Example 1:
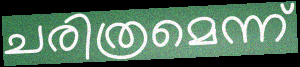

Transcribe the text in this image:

ചരിത്രമെന്ന്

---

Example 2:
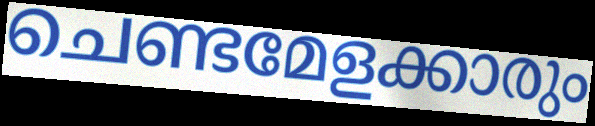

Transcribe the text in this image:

ചെണ്ടമേളക്കാരും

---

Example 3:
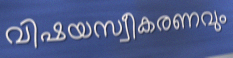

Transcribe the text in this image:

വിഷയസ്വീകരണവും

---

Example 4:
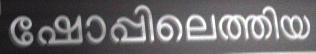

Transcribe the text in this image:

ഷോപ്പിലെത്തിയ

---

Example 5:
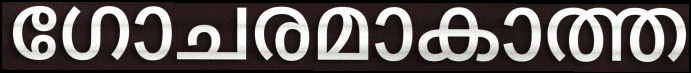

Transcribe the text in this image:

ഗോചരമാകാത്ത